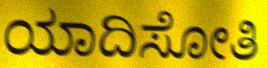
ಯಾದಿಸೋತಿ